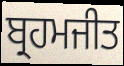
ਬ੍ਰਹਮਜੀਤ